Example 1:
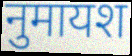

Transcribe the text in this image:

नुमायश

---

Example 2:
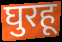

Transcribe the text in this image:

घुरहू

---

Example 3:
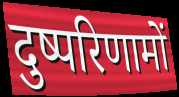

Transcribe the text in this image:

दुष्परिणामों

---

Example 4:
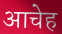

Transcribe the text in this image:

आचेह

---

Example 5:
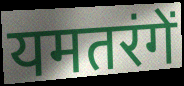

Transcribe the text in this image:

यमतरंगें